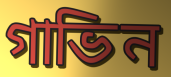
গাভিন